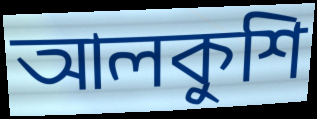
আলকুশি